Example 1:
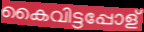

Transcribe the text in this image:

കൈവിട്ടപ്പോള്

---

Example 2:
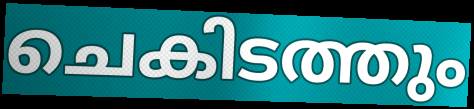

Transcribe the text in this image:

ചെകിടത്തും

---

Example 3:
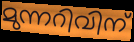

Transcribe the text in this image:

മുന്നറിവിന്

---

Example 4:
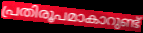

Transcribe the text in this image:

പ്രതിരൂപമാകാറുണ്ട്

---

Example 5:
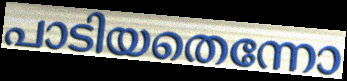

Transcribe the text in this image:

പാടിയതെന്നോ